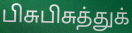
பிசுபிசுத்துக்